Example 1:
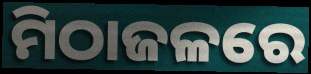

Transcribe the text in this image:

ମିଠାଜଳରେ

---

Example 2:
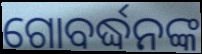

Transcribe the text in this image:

ଗୋବର୍ଦ୍ଧନଙ୍କ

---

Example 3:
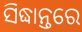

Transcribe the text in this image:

ସିଦ୍ଧାନ୍ତରେ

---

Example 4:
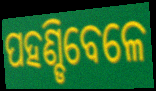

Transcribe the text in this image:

ପହଣ୍ଡିବେଳେ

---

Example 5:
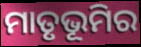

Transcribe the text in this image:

ମାତୃଭୂମିର